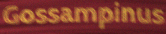
Gossampinus